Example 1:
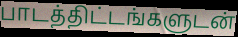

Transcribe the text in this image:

பாடத்திட்டங்களுடன்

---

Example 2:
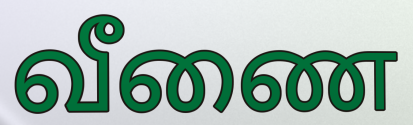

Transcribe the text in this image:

வீணை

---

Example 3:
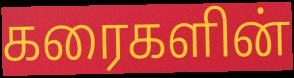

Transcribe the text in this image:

கரைகளின்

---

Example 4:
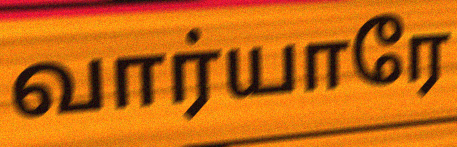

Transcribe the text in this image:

வார்யாரே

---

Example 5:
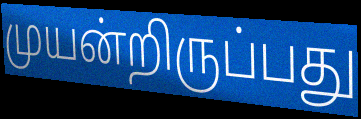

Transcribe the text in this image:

முயன்றிருப்பது